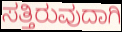
ಸತ್ತಿರುವುದಾಗಿ